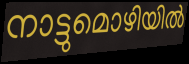
നാട്ടുമൊഴിയിൽ